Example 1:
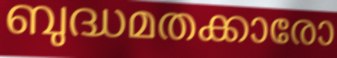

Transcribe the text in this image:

ബുദ്ധമതക്കാരോ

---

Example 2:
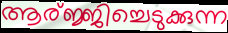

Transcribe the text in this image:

ആര്ജ്ജിച്ചെടുക്കുന്ന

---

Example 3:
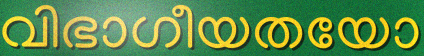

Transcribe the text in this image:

വിഭാഗീയതയോ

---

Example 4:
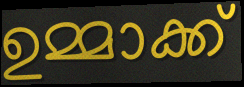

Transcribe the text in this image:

ഉമ്മാക്ക്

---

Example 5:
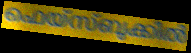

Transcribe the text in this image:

ഫെയ്സ്ബുക്കിൽ